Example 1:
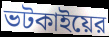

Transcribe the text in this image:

ভটকাইয়ের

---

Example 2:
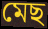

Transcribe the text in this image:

মেছ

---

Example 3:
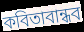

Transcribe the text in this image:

কবিতাবান্ধব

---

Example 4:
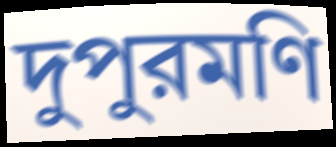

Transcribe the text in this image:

দুপুরমণি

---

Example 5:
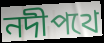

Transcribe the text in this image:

নদীপথে